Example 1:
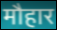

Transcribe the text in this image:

मौहार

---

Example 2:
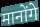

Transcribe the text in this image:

मानोंगे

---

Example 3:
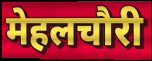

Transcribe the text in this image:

मेहलचौरी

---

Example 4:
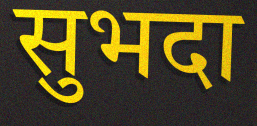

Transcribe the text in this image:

सुभदा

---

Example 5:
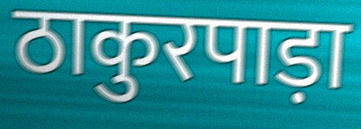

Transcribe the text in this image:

ठाकुरपाड़ा